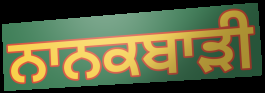
ਨਾਨਕਬਾੜੀ